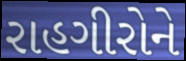
રાહગીરોને